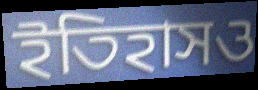
ইতিহাসও